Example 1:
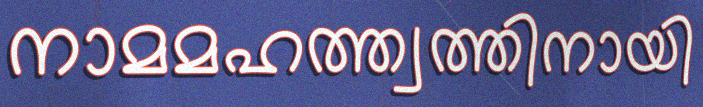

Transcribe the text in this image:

നാമമഹത്ത്വത്തിനായി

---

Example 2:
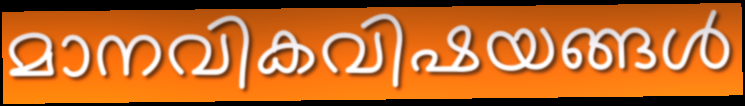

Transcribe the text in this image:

മാനവികവിഷയങ്ങൾ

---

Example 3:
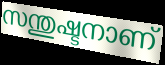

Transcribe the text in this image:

സന്തുഷ്ടനാണ്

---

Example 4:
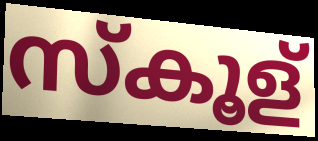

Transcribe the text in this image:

സ്കൂള്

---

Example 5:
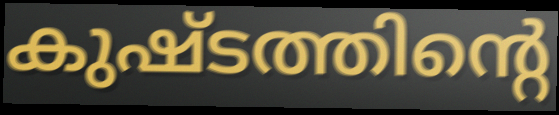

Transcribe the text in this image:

കുഷ്ടത്തിന്റെ